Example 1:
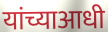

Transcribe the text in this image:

यांच्याआधी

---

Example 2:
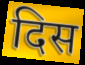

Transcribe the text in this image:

दिस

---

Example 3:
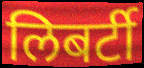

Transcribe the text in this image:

लिबर्टी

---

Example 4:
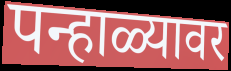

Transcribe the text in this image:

पन्हाळ्यावर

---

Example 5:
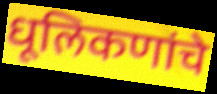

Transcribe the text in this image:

धूलिकणांचे